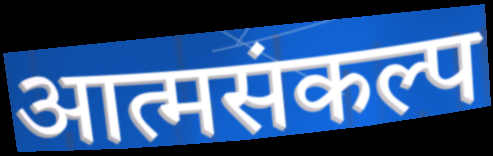
आत्मसंकल्प